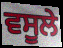
ਵਸੂਲੇ